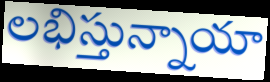
లభిస్తున్నాయా